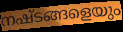
നഷ്ടങ്ങളെയും